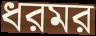
ধরমর